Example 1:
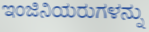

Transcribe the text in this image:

ಇಂಜಿನಿಯರುಗಳನ್ನು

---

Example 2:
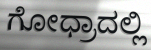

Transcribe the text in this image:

ಗೋಧ್ರಾದಲ್ಲಿ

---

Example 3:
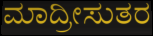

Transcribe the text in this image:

ಮಾದ್ರೀಸುತರ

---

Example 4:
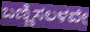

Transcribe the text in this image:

ಬಣ್ಣಿಸಲಳವೇ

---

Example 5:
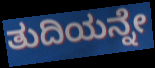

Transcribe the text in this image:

ತುದಿಯನ್ನೇ